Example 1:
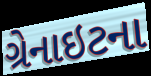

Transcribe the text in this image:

ગ્રેનાઇટના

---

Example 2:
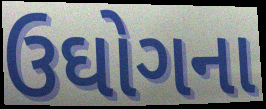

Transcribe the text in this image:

ઉઘોગના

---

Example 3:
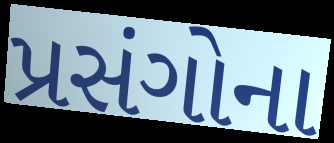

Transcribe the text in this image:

પ્રસંગોના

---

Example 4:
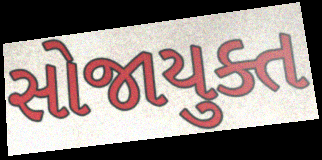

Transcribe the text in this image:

સોજાયુક્ત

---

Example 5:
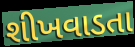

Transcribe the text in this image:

શીખવાડતા